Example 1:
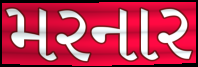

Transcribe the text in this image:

મરનાર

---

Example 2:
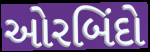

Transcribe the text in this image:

ઓરબિંદો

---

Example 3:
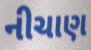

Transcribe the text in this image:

નીચાણ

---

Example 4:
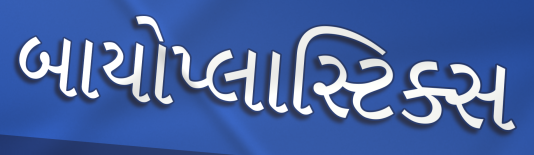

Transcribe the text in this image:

બાયોપ્લાસ્ટિક્સ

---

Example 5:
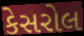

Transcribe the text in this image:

કેસરોલ